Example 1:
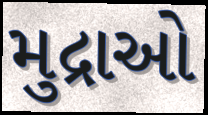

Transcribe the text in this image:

મુદ્રાઓ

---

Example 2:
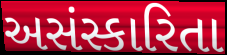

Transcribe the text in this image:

અસંસ્કારિતા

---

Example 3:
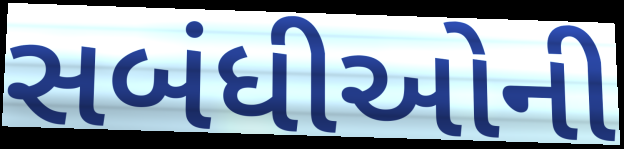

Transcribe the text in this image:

સબંધીઓની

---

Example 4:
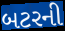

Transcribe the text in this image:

બટરની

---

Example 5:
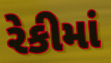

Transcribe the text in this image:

રેકીમાં